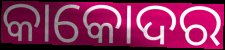
କାକୋଦର